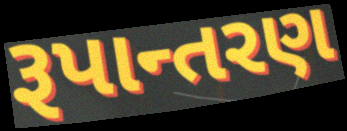
રૂપાન્તરણ